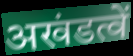
अखंडत्वें